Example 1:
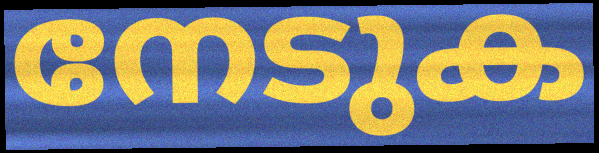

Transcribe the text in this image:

നേടുക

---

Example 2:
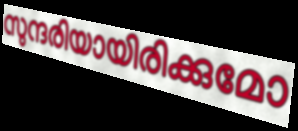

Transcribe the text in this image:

സുന്ദരിയായിരിക്കുമോ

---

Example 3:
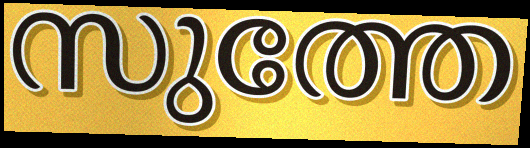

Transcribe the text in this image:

സുത്തേ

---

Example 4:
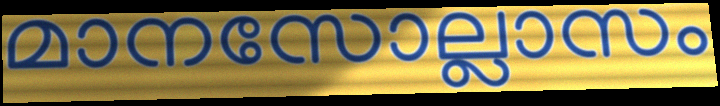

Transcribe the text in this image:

മാനസോല്ലാസം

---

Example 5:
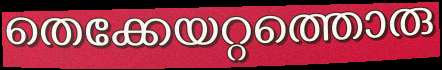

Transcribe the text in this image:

തെക്കേയറ്റത്തൊരു